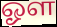
ஓள